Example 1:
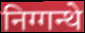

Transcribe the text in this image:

निग्गन्थे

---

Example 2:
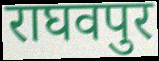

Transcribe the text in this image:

राघवपुर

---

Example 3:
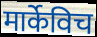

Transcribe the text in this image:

मार्केविच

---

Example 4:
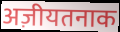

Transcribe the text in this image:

अज़ीयतनाक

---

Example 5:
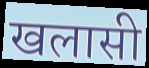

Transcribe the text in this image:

खलासी